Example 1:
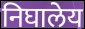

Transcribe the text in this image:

निघालेय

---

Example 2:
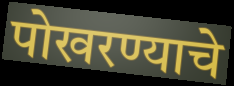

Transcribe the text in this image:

पोखरण्याचे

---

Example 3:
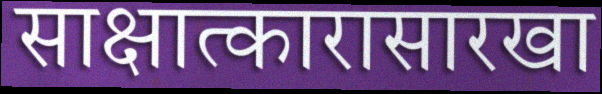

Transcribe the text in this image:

साक्षात्कारासारखा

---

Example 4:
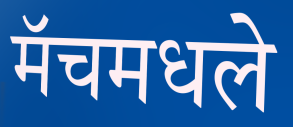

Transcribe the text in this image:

मॅचमधले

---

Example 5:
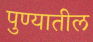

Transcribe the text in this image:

पुण्यातील